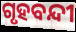
ଗୃହବନ୍ଦୀ